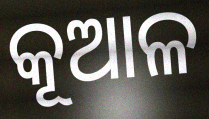
କୂଆଳ